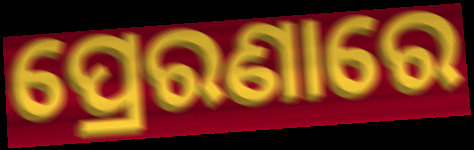
ପ୍ରେରଣାରେ